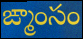
ఙ్మాంసం